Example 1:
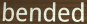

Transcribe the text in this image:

bended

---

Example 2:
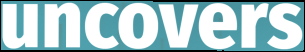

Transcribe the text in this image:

uncovers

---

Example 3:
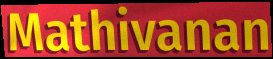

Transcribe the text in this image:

Mathivanan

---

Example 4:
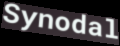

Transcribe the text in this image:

Synodal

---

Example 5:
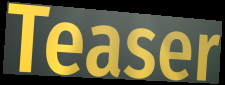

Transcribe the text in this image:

Teaser